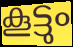
കൂട്ടും